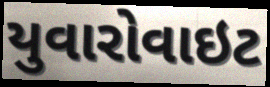
યુવારોવાઇટ